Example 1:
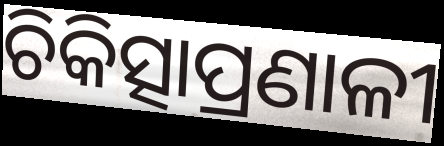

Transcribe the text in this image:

ଚିକିତ୍ସାପ୍ରଣାଳୀ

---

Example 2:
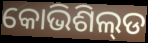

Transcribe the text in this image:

କୋଭିଶିଲ୍‌ଡ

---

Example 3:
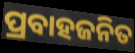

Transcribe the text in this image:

ପ୍ରବାହଜନିତ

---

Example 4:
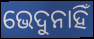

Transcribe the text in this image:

ଭେଦୁନାହିଁ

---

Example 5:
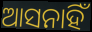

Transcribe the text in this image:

ଆସନାହିଁ